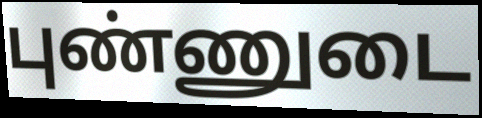
புண்ணுடை